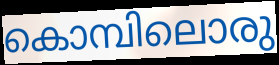
കൊമ്പിലൊരു